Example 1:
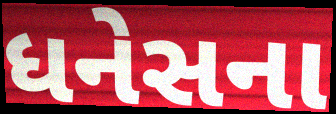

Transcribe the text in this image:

ધનેસના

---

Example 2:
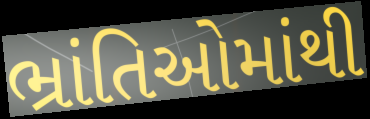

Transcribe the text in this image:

ભ્રાંતિઓમાંથી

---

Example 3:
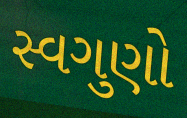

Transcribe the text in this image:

સ્વગુણો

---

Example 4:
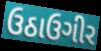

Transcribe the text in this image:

ઉઠાઉગીર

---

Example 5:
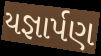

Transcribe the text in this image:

યજ્ઞાર્પણ